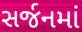
સર્જનમાં